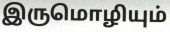
இருமொழியும்